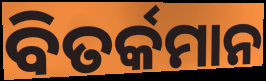
ବିତର୍କମାନ